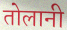
तोलानी